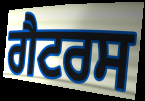
ਗੈਟਰਸ